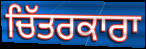
ਚਿੱਤਰਕਾਰਾ